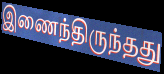
இணைந்திருந்தது